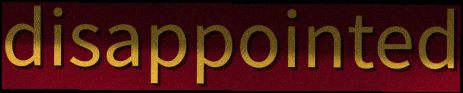
disappointed